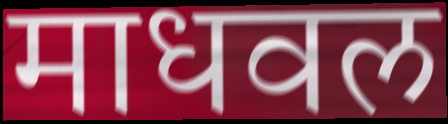
माधवल